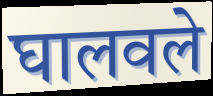
घालवले